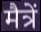
मैत्रें